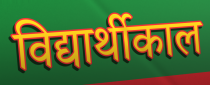
विद्यार्थीकाल